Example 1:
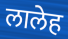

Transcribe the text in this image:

लालेह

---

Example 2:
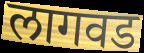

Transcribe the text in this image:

लागवड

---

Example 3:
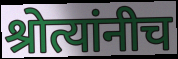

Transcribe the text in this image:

श्रोत्यांनीच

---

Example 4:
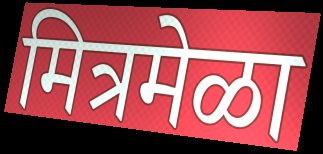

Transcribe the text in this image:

मित्रमेळा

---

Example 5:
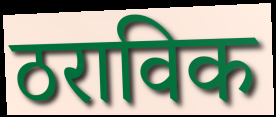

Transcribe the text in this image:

ठराविक